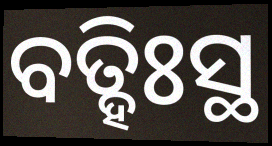
ବତ୍ହିଃସ୍ଥ